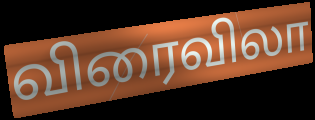
விரைவிலா